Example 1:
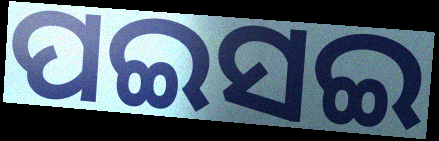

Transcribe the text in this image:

ପଇସଇ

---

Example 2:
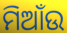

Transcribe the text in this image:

ମିଆଁଉ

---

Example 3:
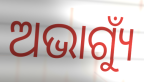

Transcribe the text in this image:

ଅଭାଗ୍ୟୁଁ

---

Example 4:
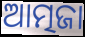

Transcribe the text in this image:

ଆତ୍ମଜା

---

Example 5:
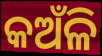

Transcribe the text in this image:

କଅଁଳି